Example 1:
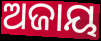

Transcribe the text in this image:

ଅଜାୟ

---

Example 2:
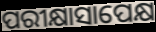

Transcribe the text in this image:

ପରୀକ୍ଷାସାପେକ୍ଷ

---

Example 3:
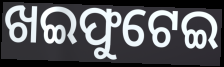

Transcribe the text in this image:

ଖଇଫୁଟେଇ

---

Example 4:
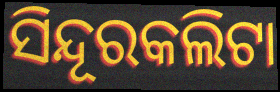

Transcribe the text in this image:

ସିନ୍ଦୂରକଲିଟା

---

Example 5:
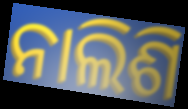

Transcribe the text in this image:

ନାଲିଶି